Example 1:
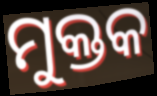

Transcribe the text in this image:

ମୁକ୍ତକ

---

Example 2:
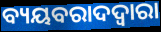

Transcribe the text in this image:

ବ୍ୟୟବରାଦଦ୍ଵାରା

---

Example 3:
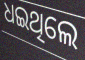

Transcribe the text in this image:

ଧଇଥିଲେ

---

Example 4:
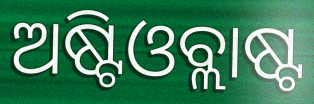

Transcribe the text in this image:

ଅଷ୍ଟିଓବ୍ଲାଷ୍ଟ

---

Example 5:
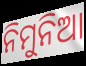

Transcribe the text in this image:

ନିମୁନିଆ